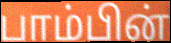
பாம்பின்